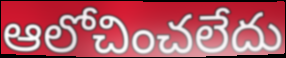
ఆలోచించలేదు